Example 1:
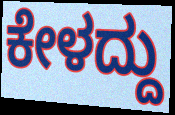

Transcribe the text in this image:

ಕೇಳದ್ದು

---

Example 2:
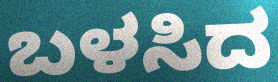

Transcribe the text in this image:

ಬಳಸಿದ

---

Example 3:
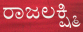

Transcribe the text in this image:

ರಾಜಲಕ್ಷ್ಮಿ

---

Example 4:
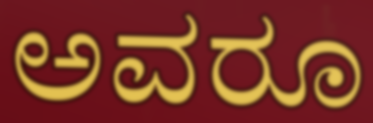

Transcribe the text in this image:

ಅವರೂ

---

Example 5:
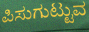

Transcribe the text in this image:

ಪಿಸುಗುಟ್ಟುವ